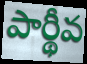
పార్థీవ